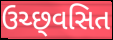
ઉચ્છ્‌વસિત